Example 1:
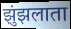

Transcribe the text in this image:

झुंझलाता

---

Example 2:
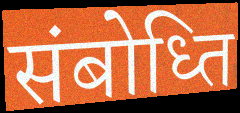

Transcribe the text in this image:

संबोध्ति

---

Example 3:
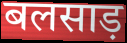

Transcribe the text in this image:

बलसाड़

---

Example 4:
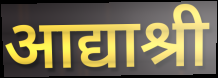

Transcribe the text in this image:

आद्याश्री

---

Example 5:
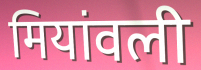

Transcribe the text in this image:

मियांवली